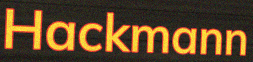
Hackmann